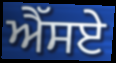
ਐੱਸਏ